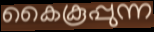
കൈകൂപ്പുന്ന